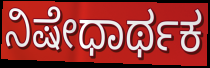
ನಿಷೇಧಾರ್ಥಕ